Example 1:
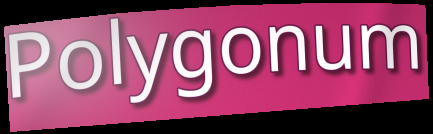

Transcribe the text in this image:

Polygonum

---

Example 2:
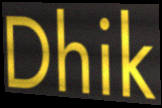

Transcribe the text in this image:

Dhik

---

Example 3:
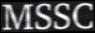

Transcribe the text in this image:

MSSC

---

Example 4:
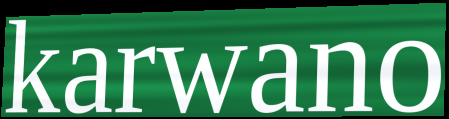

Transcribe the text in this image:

karwano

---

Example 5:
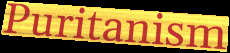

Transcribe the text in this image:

Puritanism